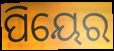
ପିୟେର